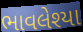
ભાવલેશ્યા